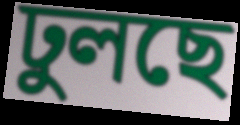
ঢুলছে